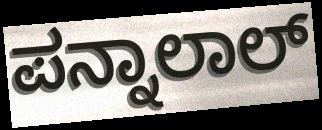
ಪನ್ನಾಲಾಲ್